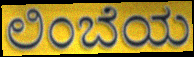
ಲಿಂಬೆಯ